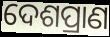
ଦେଶପ୍ରାଣ